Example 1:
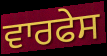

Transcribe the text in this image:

ਵਾਰਫੇਸ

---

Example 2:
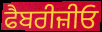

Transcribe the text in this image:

ਫੈਬਰੀਜ਼ੀਓ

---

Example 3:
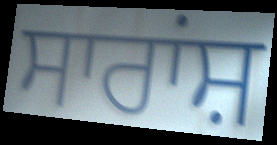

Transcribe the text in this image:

ਸਾਰਾਂਸ਼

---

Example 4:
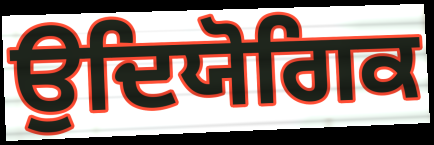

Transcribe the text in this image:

ਉਦਿਯੋਗਿਕ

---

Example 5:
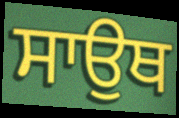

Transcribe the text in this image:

ਸਾਉਥ